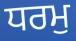
ਧਰਮੁ